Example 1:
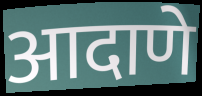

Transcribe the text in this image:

आदाणे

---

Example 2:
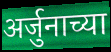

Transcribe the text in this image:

अर्जुनाच्या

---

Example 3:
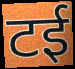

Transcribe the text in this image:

टई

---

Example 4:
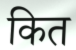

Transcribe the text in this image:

कित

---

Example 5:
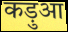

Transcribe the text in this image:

कड़ुआ